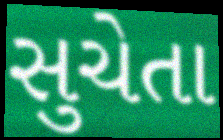
સુચેતા